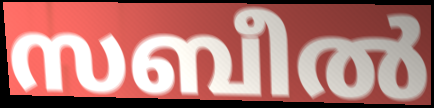
സബീൽ